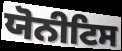
ਯੋਨੀਟਿਸ